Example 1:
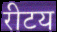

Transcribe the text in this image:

रीटय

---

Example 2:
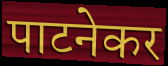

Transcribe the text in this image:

पाटनेकर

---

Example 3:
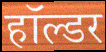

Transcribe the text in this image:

हॉल्डर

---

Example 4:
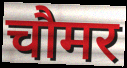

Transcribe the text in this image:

चौमर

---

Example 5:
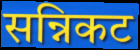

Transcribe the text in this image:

सन्निकट